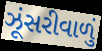
ઝૂંસરીવાળું